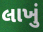
લાખું